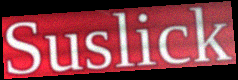
Suslick